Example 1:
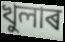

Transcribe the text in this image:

খুলাৰ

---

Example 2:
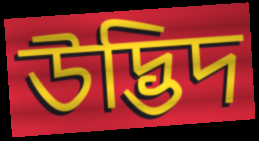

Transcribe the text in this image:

উদ্ভিদ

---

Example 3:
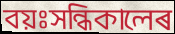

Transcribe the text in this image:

বয়ঃসন্ধিকালেৰ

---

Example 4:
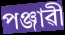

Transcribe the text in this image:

পঞ্জাৱী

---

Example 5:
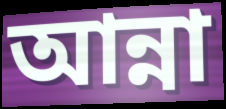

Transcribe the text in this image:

আন্না